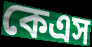
কেএস